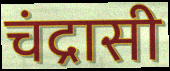
चंद्रासी